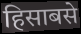
हिसाबसे